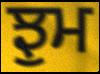
ਝੁਮ